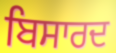
ਬਿਸਾਰਦ